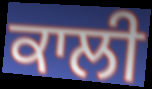
ਕਾਲੀ